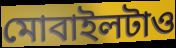
মোবাইলটাও